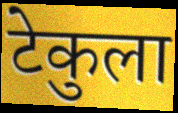
टेकुला